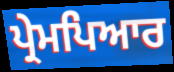
ਪ੍ਰੇਮਪਿਆਰ